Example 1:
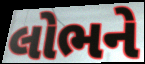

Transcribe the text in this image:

લોભને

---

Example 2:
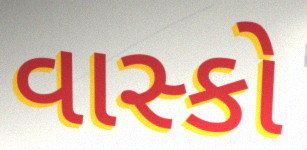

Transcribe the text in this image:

વાસ્કો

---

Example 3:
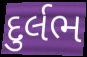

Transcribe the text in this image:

દુર્લભ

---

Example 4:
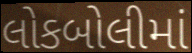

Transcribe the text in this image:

લોકબોલીમાં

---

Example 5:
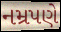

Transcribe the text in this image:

નમ્રપણે